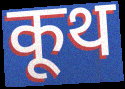
कूथ